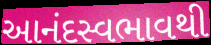
આનંદસ્વભાવથી